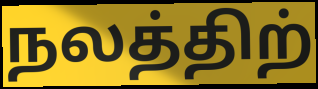
நலத்திற்